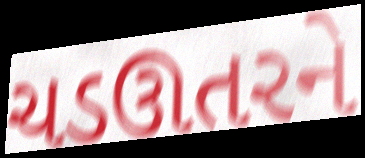
ચડઊતરને